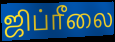
ஜிப்ரீலை